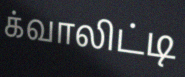
க்வாலிட்டி